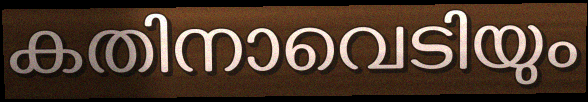
കതിനാവെടിയും